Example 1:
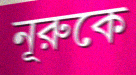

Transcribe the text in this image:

নূরুকে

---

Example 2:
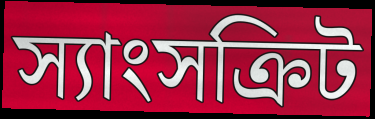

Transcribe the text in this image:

স্যাংসক্রিট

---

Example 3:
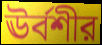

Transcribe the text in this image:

ঊর্বশীর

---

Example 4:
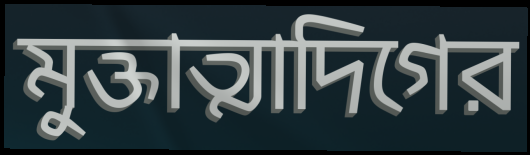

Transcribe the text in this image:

মুক্তাত্মাদিগের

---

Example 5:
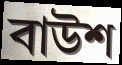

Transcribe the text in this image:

বাউশ